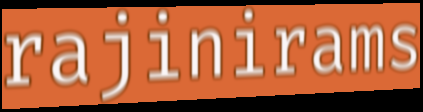
rajinirams